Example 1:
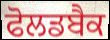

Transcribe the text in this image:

ਫੋਲਡਬੈਕ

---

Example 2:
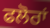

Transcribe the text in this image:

ਫਲੋਰਾਂ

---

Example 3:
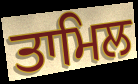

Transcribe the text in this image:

ਤਾਮਿਲ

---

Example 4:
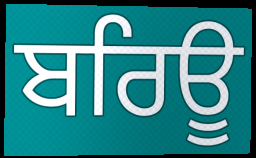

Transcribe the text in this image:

ਬਰਿਊ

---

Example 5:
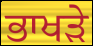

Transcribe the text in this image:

ਭਾਖੜੇ